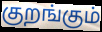
குறங்கும்